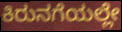
ಕಿರುನಗೆಯಲ್ಲೇ